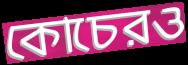
কোচেরও